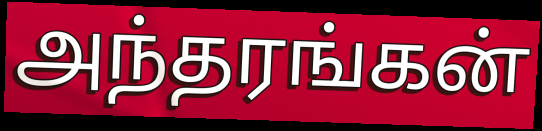
அந்தரங்கன்